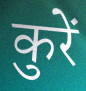
कुरें